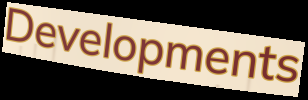
Developments